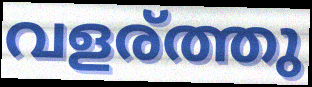
വളര്ത്തു